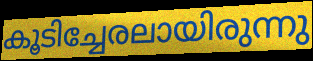
കൂടിച്ചേരലായിരുന്നു